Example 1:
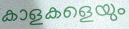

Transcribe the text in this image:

കാളകളെയും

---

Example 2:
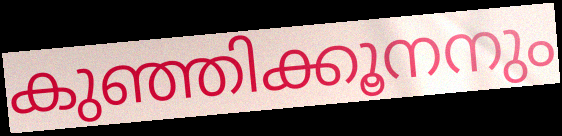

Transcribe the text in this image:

കുഞ്ഞിക്കൂനനും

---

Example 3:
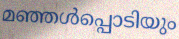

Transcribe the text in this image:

മഞ്ഞൾപ്പൊടിയും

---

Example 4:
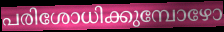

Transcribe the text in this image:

പരിശോധിക്കുമ്പോഴോ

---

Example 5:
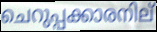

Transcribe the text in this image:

ചെറുപ്പക്കാരനില്